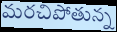
మరచిపోతున్న